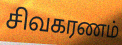
சிவகரணம்